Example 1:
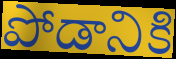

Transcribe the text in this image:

పోడానికి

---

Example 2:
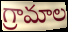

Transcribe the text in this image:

గ్రామాల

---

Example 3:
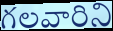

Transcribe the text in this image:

గలవారిని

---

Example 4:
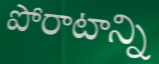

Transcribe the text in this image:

పోరాటాన్ని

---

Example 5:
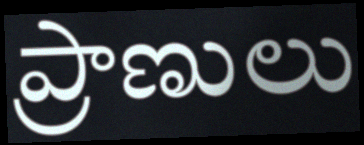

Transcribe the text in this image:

ప్రాణులు